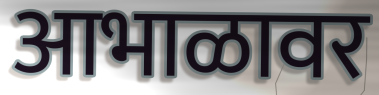
आभाळावर